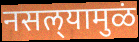
नसल्यामुळं